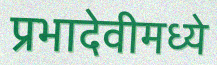
प्रभादेवीमध्ये